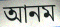
আনম